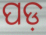
ପଡ଼